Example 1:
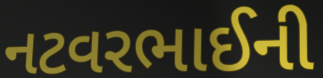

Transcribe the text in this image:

નટવરભાઈની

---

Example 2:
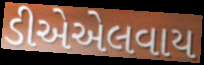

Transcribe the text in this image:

ડીએએલવાય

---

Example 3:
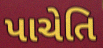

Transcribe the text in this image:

પાચેતિ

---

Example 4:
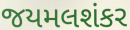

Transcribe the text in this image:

જયમલશંકર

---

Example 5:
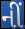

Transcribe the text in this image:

નીં